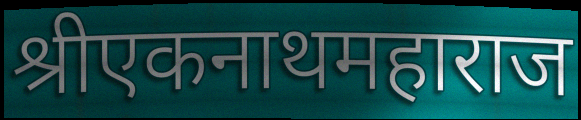
श्रीएकनाथमहाराज